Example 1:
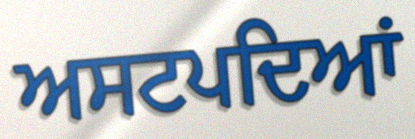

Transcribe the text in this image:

ਅਸਟਪਦਿਆਂ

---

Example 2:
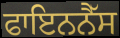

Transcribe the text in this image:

ਫਾਇਨਨੈੱਸ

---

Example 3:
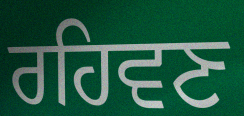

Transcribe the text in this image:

ਰਹਿਵਣ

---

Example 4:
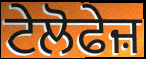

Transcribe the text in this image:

ਟੇਲੋਫੇਜ਼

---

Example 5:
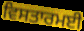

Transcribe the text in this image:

ਵਿਸਤਾਰਮਈ